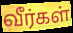
வீர்கள்